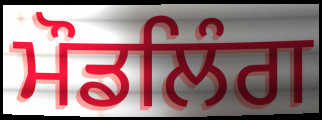
ਮੌਡਲਿੰਗ